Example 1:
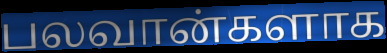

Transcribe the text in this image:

பலவான்களாக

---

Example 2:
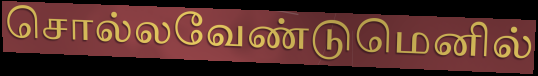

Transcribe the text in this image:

சொல்லவேண்டுமெனில்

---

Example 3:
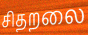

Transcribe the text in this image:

சிதறலை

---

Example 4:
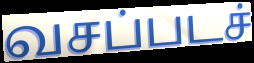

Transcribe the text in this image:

வசப்படச்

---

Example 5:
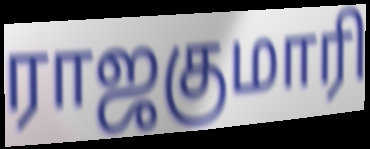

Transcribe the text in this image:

ராஜகுமாரி